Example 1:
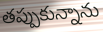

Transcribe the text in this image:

తప్పుకున్నాను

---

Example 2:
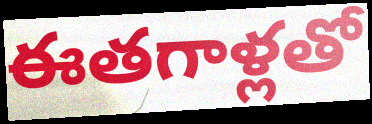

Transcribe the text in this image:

ఈతగాళ్లతో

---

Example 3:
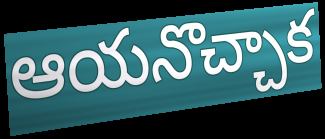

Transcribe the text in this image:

ఆయనొచ్చాక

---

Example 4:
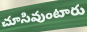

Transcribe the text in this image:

చూసివుంటారు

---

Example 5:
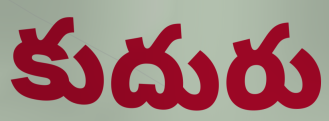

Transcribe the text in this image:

కుదురు